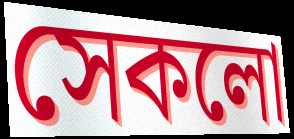
সেকলো